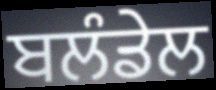
ਬਲੰਡੇਲ